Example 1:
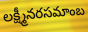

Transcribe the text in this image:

లక్ష్మీనరసమాంబ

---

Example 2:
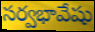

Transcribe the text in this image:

సర్వభావేషు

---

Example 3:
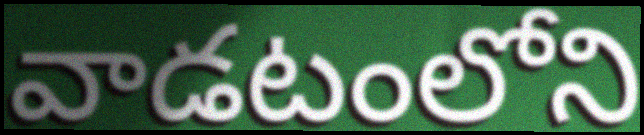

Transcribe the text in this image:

వాడటంలోని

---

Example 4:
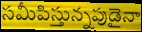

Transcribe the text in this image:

సమీపిస్తున్నపుడైనా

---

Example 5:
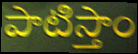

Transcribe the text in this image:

పాటిస్తాం